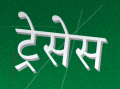
ट्रेसेस